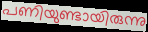
പണിയുണ്ടായിരുന്നു